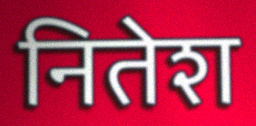
नितेश